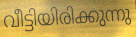
വീട്ടിയിരിക്കുന്നു